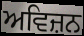
ਅਵਿਜ਼ਨ